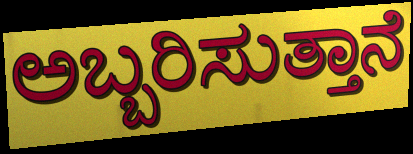
ಅಬ್ಬರಿಸುತ್ತಾನೆ